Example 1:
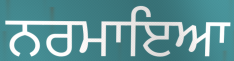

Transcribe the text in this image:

ਨਰਮਾਇਆ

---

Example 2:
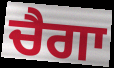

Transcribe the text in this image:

ਚੈਗਾ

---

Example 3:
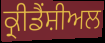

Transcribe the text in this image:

ਕ੍ਰੀਡੈਂਸ਼ੀਅਲ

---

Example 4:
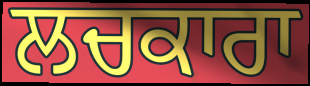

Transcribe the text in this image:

ਲਚਕਾਰਾ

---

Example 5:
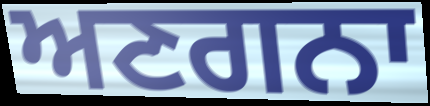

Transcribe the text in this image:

ਅਣਗਨਾ